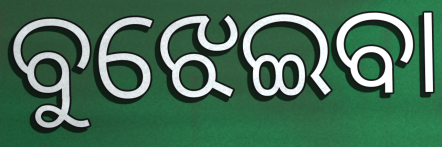
ବୁଝେଇବା